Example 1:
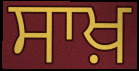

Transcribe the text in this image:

ਸਾਖ਼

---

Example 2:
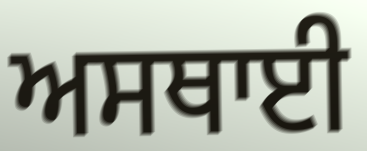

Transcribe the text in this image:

ਅਸਥਾਈ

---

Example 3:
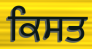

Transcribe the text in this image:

ਕਿਸਤ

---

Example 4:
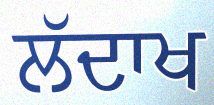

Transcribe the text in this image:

ਲੱਦਾਖ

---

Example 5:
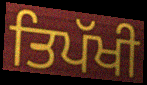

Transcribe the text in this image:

ਤਿਪੱਖੀ